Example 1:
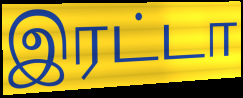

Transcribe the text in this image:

இரட்டா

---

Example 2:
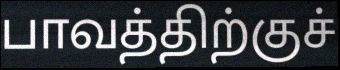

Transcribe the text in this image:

பாவத்திற்குச்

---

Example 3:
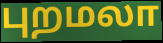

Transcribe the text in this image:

புறமலா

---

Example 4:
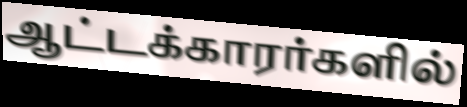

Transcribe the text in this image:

ஆட்டக்காரர்களில்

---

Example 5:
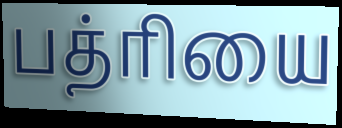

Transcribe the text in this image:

பத்ரியை